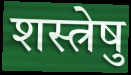
शस्त्रेषु